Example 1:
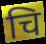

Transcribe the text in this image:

चि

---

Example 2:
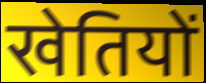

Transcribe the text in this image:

खेतियों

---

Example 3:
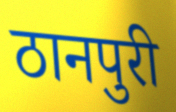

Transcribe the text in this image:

ठानपुरी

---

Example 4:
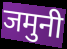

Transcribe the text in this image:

जमुनी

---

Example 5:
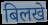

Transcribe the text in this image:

बिलखे